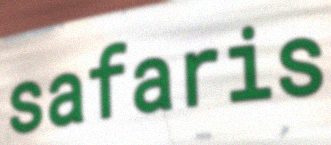
safaris